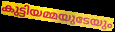
കുട്ടിയമ്മയുടേയും